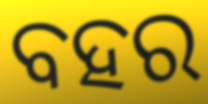
ବହର